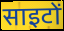
साइटों